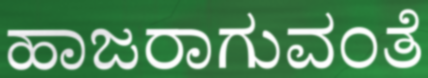
ಹಾಜರಾಗುವಂತೆ